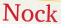
Nock